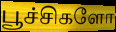
பூச்சிகளோ